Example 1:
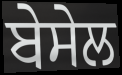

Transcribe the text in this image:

ਬੇਸੇਲ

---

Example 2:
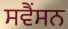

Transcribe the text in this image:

ਸਵੈਂਸਨ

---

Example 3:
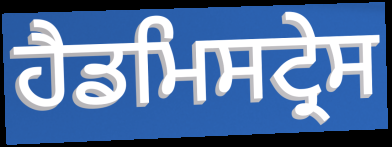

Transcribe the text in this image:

ਹੈਡਮਿਸਟ੍ਰੇਸ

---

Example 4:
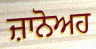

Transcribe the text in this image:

ਜ਼ਾਨੋਅਹ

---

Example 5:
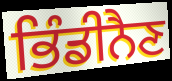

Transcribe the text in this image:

ਭਿੰਡੀਨੈਣ